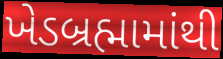
ખેડબ્રહ્મામાંથી